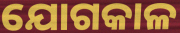
ଯୋଗକାଳ